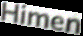
Himen